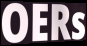
OERs